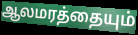
ஆலமரத்தையும்